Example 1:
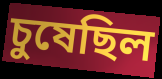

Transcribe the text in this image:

চুষেছিল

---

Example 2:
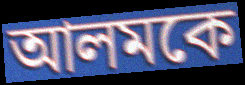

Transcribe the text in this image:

আলমকে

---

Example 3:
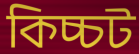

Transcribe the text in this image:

কিচ্চট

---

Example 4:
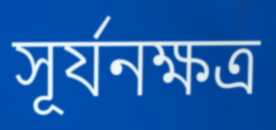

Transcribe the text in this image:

সূর্যনক্ষত্র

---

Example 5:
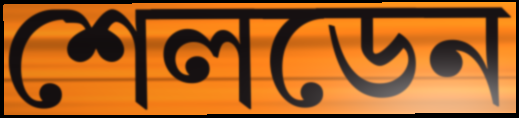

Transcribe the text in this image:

শেলডেন